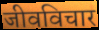
जीवविचार